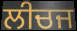
ਲੀਚਜ